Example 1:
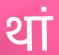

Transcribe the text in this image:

थां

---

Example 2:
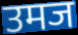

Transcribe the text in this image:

उमज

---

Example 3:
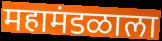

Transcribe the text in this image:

महामंडळाला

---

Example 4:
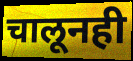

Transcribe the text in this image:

चालूनही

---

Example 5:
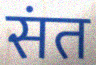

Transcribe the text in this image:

संत